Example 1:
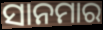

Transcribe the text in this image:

ସାନମାର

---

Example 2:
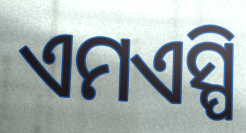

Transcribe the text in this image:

ଏମଏସ୍ପି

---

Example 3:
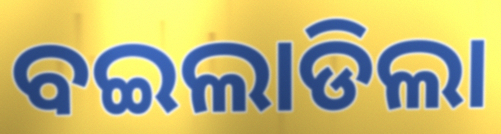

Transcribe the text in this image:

ବଇଲାଡିଲା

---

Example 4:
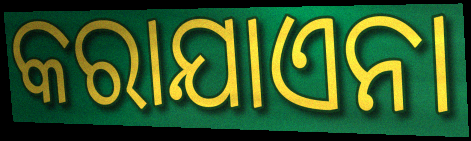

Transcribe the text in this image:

କରାଯାଏନା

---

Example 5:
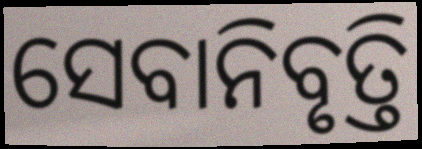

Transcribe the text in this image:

ସେବାନିବୃତ୍ତି